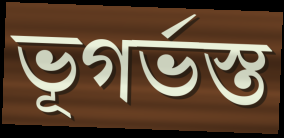
ভূগর্ভস্ত